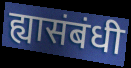
ह्यासंबंधी